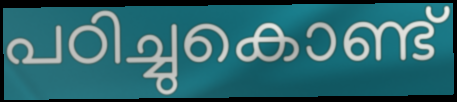
പഠിച്ചുകൊണ്ട്